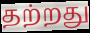
தற்றது